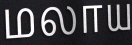
மலாய